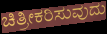
ಚಿತ್ರೀಕರಿಸುವುದು